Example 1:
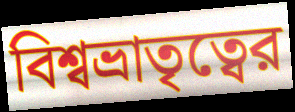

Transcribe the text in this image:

বিশ্বভ্রাতৃত্বের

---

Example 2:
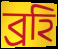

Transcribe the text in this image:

ব্রহি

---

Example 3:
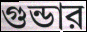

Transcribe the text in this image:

গুন্ডার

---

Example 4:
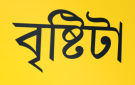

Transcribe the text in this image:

বৃষ্টিটা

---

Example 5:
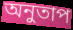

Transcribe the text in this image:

অনুতাপ